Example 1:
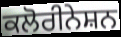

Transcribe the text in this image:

ਕਲੋਰੀਨੇਸ਼ਨ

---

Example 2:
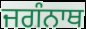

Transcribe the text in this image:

ਜਗੰਨਾਥ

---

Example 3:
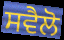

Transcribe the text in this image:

ਸਵੈਲੋ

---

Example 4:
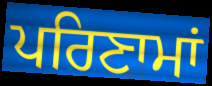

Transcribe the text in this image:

ਪਰਿਣਾਮਾਂ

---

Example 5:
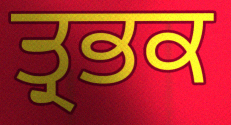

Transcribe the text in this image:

ਤ੍ਰਭਕ